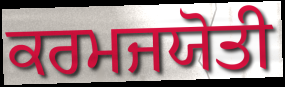
ਕਰਮਜਯੋਤੀ